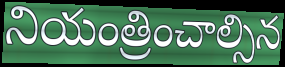
నియంత్రించాల్సిన